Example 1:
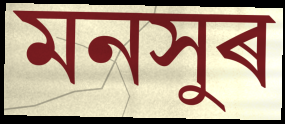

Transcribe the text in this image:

মনসুৰ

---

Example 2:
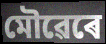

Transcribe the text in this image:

মৌৱেৰে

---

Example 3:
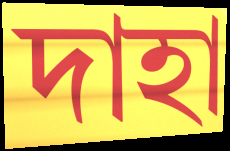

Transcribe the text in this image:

দাহা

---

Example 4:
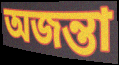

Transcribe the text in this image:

অজন্তা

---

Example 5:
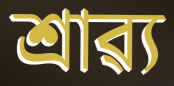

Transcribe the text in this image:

শ্ৰাৱ্য